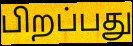
பிறப்பது